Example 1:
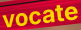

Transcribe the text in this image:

vocate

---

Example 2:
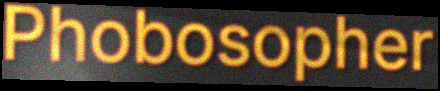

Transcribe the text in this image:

Phobosopher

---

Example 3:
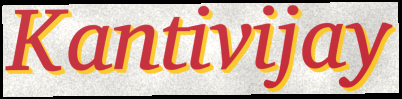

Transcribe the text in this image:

Kantivijay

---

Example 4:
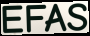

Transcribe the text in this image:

EFAS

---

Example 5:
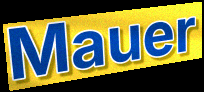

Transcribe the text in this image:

Mauer